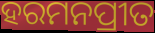
ହରମନପ୍ରୀତ